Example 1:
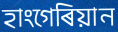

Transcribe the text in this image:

হাংগেৰিয়ান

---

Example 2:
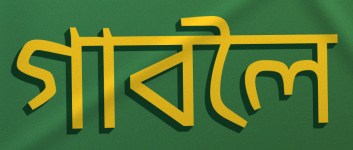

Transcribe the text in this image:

গাবলৈ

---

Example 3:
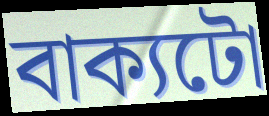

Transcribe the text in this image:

বাক্যটো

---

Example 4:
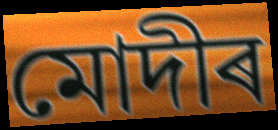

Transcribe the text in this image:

মোদীৰ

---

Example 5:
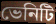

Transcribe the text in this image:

ভেনিটি